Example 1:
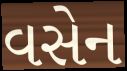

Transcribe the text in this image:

વસેન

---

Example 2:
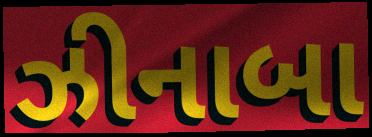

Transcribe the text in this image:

ઝીનાબા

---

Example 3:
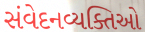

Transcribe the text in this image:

સંવેદનવ્યક્તિઓ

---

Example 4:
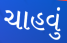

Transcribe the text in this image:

ચાહવું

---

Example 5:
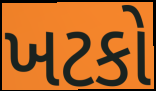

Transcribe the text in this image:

ખટકો